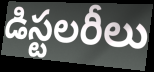
డిస్టలరీలు